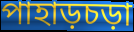
পাহাড়চড়া